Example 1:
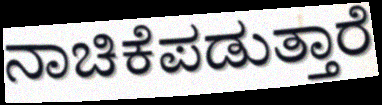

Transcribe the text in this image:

ನಾಚಿಕೆಪಡುತ್ತಾರೆ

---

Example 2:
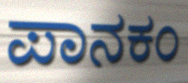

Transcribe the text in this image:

ಪಾನಕಂ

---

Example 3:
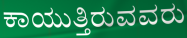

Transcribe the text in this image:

ಕಾಯುತ್ತಿರುವವರು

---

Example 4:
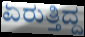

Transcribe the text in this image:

ಏರುತ್ತಿದ್ದ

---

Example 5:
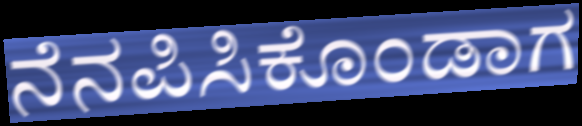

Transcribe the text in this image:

ನೆನಪಿಸಿಕೊಂಡಾಗ